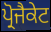
ਪ੍ਰੋਜੈਕੇਟ